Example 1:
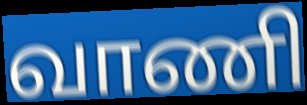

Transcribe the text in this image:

வாணி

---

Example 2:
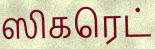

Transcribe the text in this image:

ஸிகரெட்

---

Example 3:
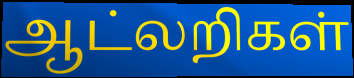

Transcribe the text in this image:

ஆட்லறிகள்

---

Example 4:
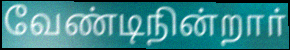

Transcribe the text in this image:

வேண்டிநின்றார்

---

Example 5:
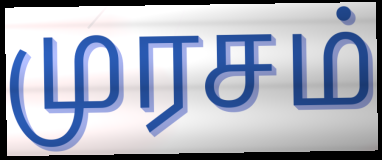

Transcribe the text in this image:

முரசம்